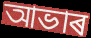
আভাৰ